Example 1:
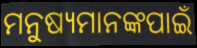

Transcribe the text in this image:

ମନୁଷ୍ୟମାନଙ୍କପାଇଁ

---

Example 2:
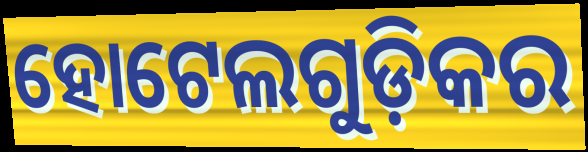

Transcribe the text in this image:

ହୋଟେଲଗୁଡ଼ିକର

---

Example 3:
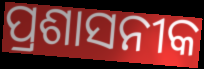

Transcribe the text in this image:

ପ୍ରଶାସନୀକ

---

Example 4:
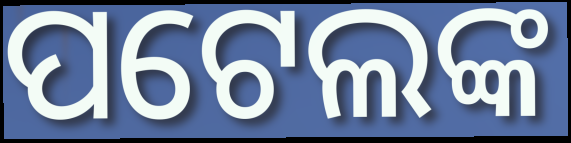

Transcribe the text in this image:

ପଟେଲଙ୍କ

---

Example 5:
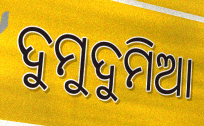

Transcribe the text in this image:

ଦୁମୁଦୁମିଆ